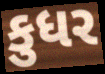
કુધર